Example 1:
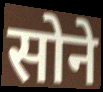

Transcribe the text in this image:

सोने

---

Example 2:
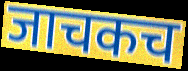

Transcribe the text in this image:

जाचकच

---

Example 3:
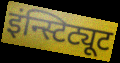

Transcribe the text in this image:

इंन्स्टिट्यूट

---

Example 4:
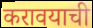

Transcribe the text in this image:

करावयाची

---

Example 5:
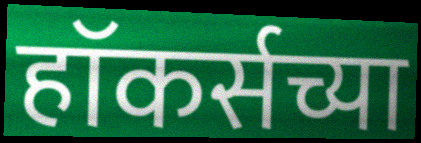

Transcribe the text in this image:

हॉकर्सच्या